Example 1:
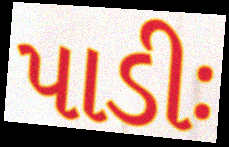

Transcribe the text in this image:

પાડીઃ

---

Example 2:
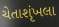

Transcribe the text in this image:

ચેતાશૃંખલા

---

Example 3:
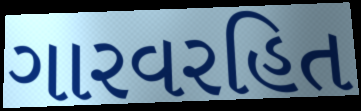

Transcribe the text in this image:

ગારવરહિત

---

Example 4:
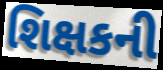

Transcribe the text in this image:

શિક્ષકની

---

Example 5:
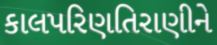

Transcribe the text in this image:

કાલપરિણતિરાણીને